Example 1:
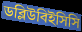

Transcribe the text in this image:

ডব্লিউবিইসিসি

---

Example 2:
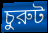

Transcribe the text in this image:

চুরুট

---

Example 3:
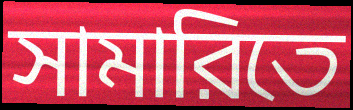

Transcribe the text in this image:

সামারিতে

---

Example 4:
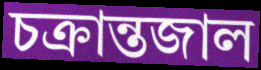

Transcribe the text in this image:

চক্রান্তজাল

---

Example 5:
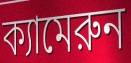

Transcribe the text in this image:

ক্যামেরুন